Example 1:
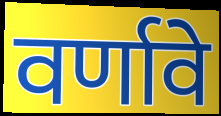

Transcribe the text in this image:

वर्णावे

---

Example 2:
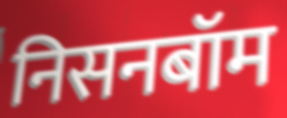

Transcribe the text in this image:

निसनबॉम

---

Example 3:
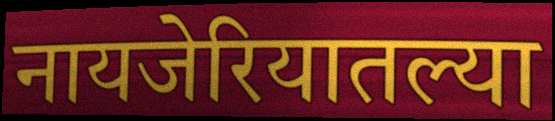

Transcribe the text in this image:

नायजेरियातल्या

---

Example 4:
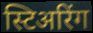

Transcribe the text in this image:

स्टिअरिंग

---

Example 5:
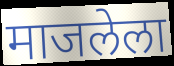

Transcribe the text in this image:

माजलेला